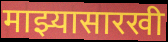
माझ्यासारखी